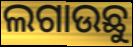
ଲଗାଉଛୁ